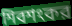
শিবশংকর